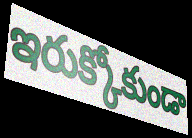
ఇరుక్కోకుండా